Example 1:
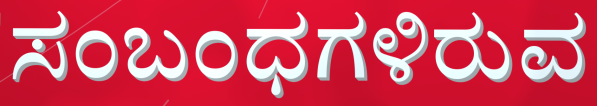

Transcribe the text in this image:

ಸಂಬಂಧಗಳಿರುವ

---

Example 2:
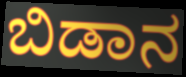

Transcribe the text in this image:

ಬಿಡಾನ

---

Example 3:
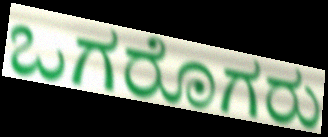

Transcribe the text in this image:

ಒಗರೊಗರು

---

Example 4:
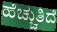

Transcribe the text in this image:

ಹೆಚ್ಚುತಿದೆ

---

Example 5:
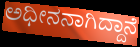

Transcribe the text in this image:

ಅಧೀನನಾಗಿದ್ದಾನೆ